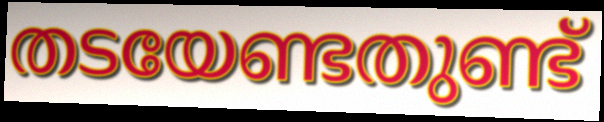
തടയേണ്ടതുണ്ട്